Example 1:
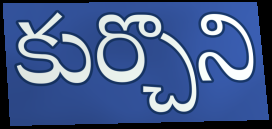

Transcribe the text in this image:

కుర్చొని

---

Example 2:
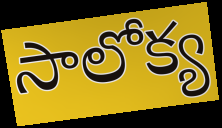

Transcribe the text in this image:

సాలోక్య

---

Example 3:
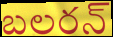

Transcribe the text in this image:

బలరన్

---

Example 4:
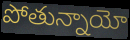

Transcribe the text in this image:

పోతున్నాయో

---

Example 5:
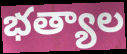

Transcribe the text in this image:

భత్యాల